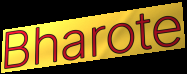
Bharote